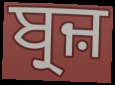
ਬ੍ਰਜ਼